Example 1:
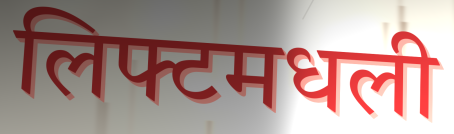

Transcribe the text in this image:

लिफ्टमधली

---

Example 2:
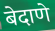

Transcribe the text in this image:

बेदाणे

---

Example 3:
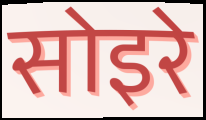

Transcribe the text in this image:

सोइरे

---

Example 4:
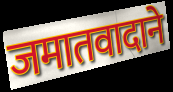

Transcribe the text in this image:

जमातवादाने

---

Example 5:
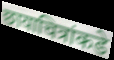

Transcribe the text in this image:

छायाचित्रांकडे